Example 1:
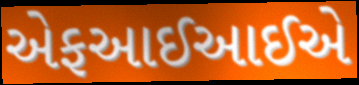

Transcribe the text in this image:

એફઆઈઆઈએ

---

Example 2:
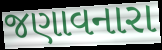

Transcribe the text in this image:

જણાવનારા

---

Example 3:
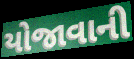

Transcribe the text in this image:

યોજાવાની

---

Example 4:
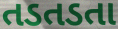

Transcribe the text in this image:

તડતડતા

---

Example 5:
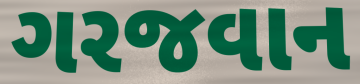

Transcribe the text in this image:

ગરજવાન